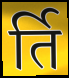
र्ति